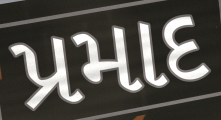
પ્રમાદ